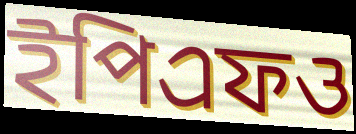
ইপিএফও